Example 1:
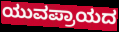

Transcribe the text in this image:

ಯುವಪ್ರಾಯದ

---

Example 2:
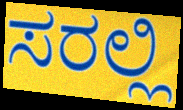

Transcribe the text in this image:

ಸರಲ್ಲಿ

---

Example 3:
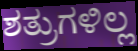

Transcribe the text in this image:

ಶತ್ರುಗಳಿಲ್ಲ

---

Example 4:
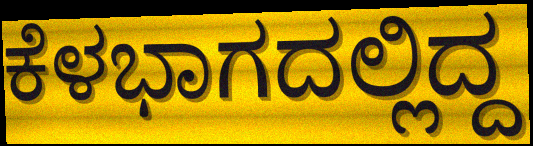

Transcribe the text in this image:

ಕೆಳಭಾಗದಲ್ಲಿದ್ದ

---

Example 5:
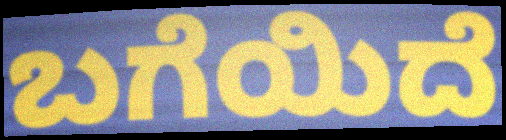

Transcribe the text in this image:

ಬಗೆಯಿದೆ